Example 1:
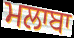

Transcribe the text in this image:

ਮਲਾਬਾ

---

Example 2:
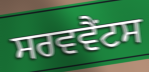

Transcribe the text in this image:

ਸਰਵਵੈਂਟਸ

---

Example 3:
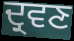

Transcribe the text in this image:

ਦ੍ਰਵਣ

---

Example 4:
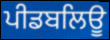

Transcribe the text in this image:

ਪੀਡਬਲਿਊ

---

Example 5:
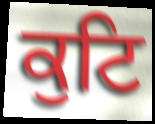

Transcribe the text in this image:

ਕੁਟਿ